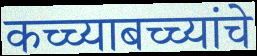
कच्च्याबच्च्यांचे